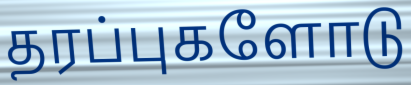
தரப்புகளோடு